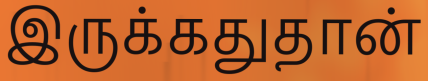
இருக்கதுதான்